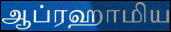
ஆப்ரஹாமிய